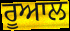
ਰੂਆਲ